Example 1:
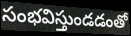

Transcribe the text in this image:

సంభవిస్తుండడంతో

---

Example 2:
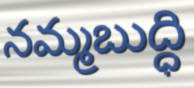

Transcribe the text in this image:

నమ్మబుద్ధి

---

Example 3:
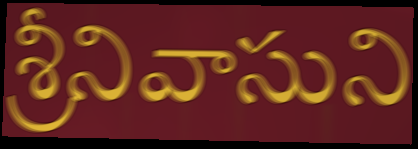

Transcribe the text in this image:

శ్రీనివాసుని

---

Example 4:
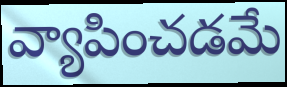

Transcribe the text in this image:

వ్యాపించడమే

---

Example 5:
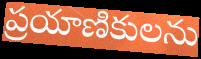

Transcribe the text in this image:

ప్రయాణికులను